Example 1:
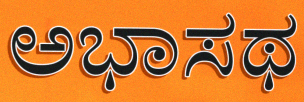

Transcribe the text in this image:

ಅಭಾಸಥ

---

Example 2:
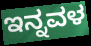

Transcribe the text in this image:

ಇನ್ನವಳ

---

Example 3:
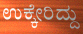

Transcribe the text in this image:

ಉಕ್ಕೇರಿದ್ದು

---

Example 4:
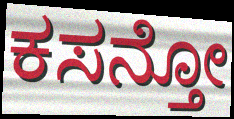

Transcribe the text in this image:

ಕಸನ್ತೋ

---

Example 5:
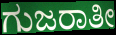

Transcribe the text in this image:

ಗುಜರಾತೀ